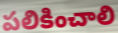
పలికించాలి